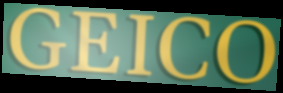
GEICO